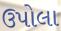
ઉપોલા